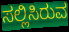
ಸಲ್ಲಿಸಿರುವ